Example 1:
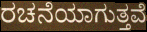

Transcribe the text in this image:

ರಚನೆಯಾಗುತ್ತವೆ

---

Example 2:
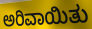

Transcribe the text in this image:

ಅರಿವಾಯಿತು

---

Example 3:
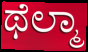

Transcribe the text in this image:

ಥೆಲ್ಮಾ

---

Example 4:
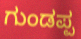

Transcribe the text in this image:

ಗುಂಡಪ್ಪ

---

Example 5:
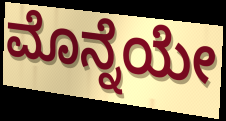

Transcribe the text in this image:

ಮೊನ್ನೆಯೇ